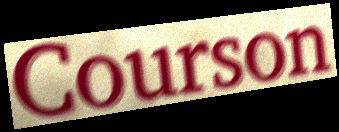
Courson